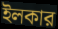
ইলকার